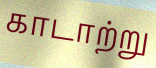
காடாற்று